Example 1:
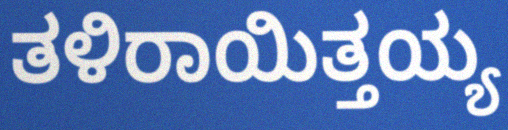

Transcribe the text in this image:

ತಳಿರಾಯಿತ್ತಯ್ಯ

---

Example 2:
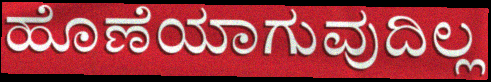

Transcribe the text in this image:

ಹೊಣೆಯಾಗುವುದಿಲ್ಲ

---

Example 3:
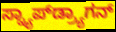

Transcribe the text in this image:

ಸ್ನ್ಯಾಪ್‌ಡ್ರ್ಯಾಗನ್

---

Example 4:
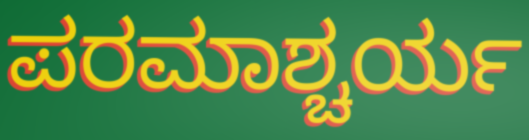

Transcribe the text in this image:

ಪರಮಾಶ್ಚರ್ಯ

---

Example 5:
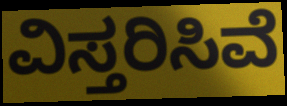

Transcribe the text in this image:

ವಿಸ್ತರಿಸಿವೆ